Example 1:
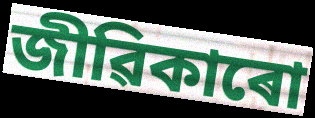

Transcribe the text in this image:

জীৱিকাৰো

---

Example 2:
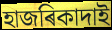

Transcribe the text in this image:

হাজৰিকাদাই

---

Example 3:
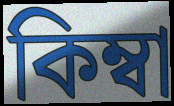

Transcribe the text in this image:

কিম্বা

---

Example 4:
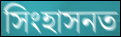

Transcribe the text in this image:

সিংহাসনত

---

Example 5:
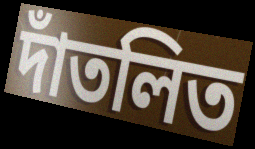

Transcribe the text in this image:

দাঁতলিত